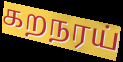
கறநரய்